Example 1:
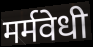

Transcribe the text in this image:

मर्मवेधी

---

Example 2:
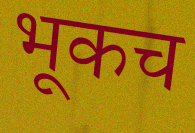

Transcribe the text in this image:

भूकच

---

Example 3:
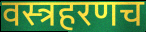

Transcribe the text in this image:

वस्त्रहरणच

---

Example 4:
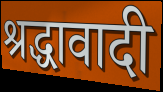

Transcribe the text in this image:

श्रद्धावादी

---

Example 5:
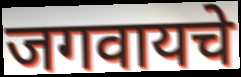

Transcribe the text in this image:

जगवायचे